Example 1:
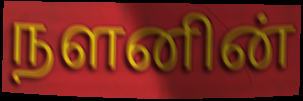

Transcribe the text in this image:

நளனின்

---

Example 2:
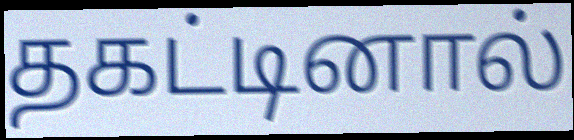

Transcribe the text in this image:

தகட்டினால்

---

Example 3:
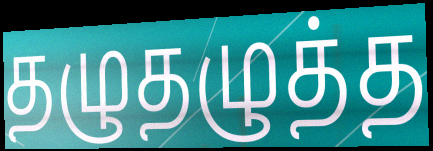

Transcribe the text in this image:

தழுதழுத்த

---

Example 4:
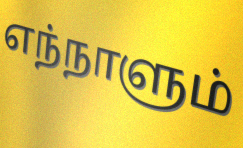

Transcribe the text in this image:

எந்நாளும்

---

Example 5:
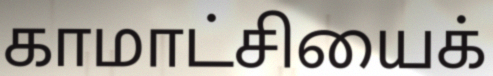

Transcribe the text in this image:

காமாட்சியைக்